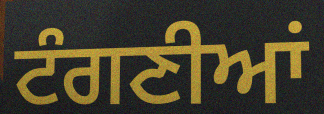
ਟੰਗਣੀਆਂ